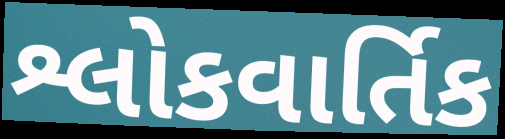
શ્લોકવાર્તિક